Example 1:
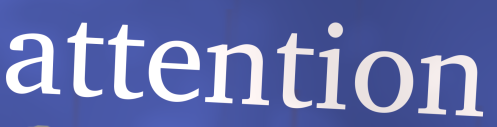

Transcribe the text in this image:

attention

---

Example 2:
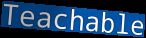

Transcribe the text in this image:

Teachable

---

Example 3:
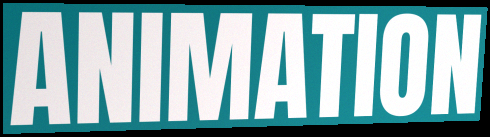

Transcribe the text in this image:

ANIMATION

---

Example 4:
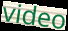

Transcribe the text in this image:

video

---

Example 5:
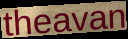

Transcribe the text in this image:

theavan